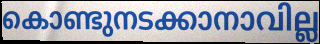
കൊണ്ടുനടക്കാനാവില്ല